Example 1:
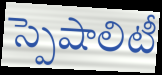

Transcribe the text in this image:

స్పెషాలిటీ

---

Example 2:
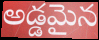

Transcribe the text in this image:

అడ్డమైన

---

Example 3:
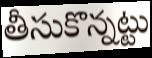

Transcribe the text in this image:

తీసుకొన్నట్టు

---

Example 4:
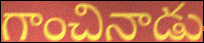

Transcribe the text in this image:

గాంచినాడు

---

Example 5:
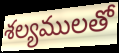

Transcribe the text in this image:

శల్యములతో